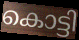
കൊട്ടി